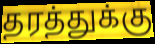
தரத்துக்கு